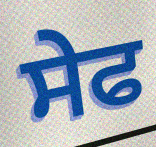
ਸੇਫ